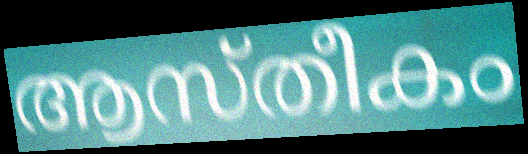
ആസ്തീകം